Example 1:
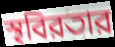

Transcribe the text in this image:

স্থবিরতার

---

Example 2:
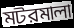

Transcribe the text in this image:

মটরমালা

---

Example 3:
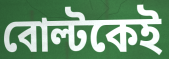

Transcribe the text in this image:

বোল্টকেই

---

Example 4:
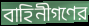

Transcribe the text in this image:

বাহিনীগণের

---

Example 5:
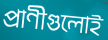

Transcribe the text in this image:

প্রাণীগুলোই